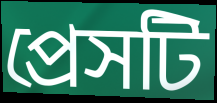
প্রেসটি